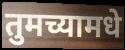
तुमच्यामधे